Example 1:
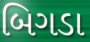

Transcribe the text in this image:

બિગડા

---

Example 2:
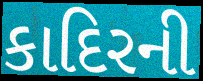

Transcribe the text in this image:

કાદિરની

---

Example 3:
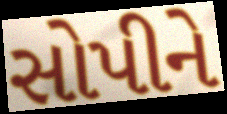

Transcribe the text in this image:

સોપીને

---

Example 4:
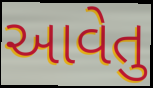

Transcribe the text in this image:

આવેતુ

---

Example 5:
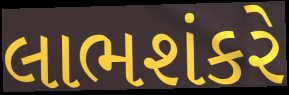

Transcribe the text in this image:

લાભશંકરે